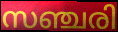
സഞ്ചരി